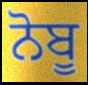
ਨੋਬੂ